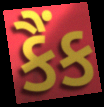
કૈંક